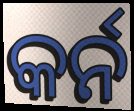
କର୍ନ